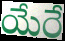
యేరే